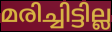
മരിച്ചിട്ടില്ല